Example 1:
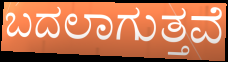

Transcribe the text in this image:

ಬದಲಾಗುತ್ತವೆ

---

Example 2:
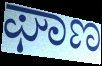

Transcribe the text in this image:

ಘಾಣ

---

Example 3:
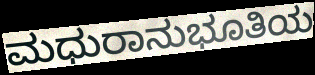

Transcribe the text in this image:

ಮಧುರಾನುಭೂತಿಯ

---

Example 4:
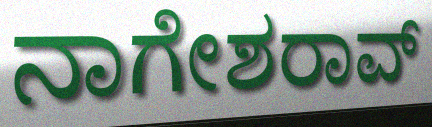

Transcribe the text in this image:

ನಾಗೇಶರಾವ್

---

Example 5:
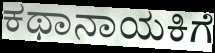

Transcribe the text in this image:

ಕಥಾನಾಯಕಿಗೆ